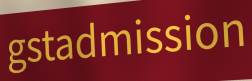
gstadmission